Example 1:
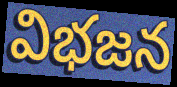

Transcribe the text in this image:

విభజన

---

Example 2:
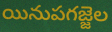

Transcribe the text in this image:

యినుపగజ్జెల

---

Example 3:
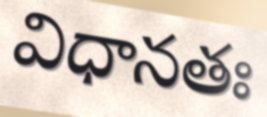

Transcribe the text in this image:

విధానతః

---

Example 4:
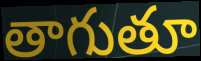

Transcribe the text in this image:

తాగుతూ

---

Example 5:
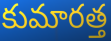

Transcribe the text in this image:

కుమారత్త